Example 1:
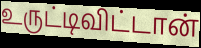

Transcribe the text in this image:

உருட்டிவிட்டான்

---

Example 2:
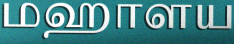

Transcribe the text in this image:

மஹாளய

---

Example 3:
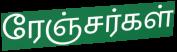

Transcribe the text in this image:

ரேஞ்சர்கள்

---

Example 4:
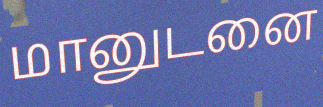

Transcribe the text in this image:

மானுடனை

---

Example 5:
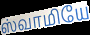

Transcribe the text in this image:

ஸ்வாமியே